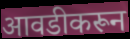
आवडीकरून